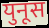
युनूस